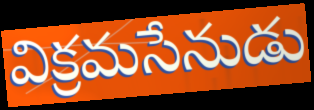
విక్రమసేనుడు